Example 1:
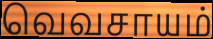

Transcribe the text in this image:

வெவசாயம்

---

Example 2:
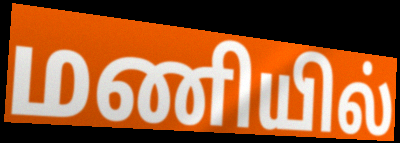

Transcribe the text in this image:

மணியில்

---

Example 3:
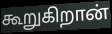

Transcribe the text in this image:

கூறுகிறான்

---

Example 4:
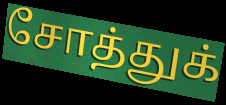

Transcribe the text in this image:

சோத்துக்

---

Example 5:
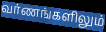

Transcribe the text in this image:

வர்ணங்களிலும்